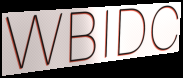
WBIDC